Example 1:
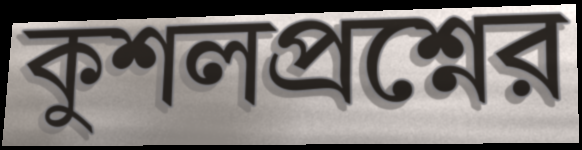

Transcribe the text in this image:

কুশলপ্রশ্নের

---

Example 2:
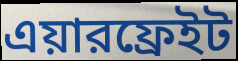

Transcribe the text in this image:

এয়ারফ্রেইট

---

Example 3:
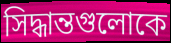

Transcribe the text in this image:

সিদ্ধান্তগুলোকে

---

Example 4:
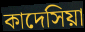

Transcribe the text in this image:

কাদেসিয়া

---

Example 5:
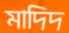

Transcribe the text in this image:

মাদিদ